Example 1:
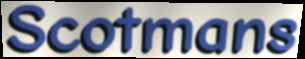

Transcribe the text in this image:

Scotmans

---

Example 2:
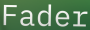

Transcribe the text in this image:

Fader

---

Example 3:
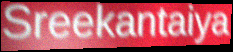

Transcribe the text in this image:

Sreekantaiya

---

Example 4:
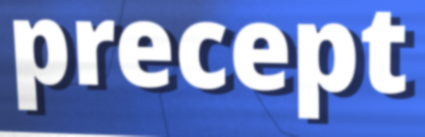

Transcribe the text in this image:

precept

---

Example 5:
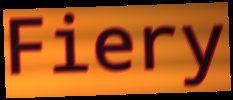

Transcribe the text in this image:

Fiery